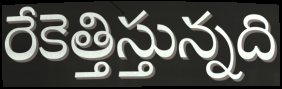
రేకెత్తిస్తున్నది